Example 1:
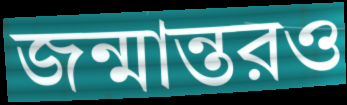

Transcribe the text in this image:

জন্মান্তরও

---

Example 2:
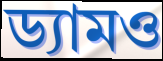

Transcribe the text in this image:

ড্যামও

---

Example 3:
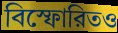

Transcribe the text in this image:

বিস্ফোরিতও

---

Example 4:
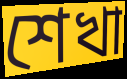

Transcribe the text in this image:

শেখা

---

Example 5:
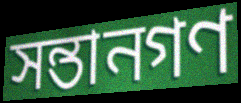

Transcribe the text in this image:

সন্তানগণ